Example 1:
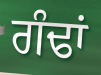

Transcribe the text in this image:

ਗੰਢਾਂ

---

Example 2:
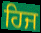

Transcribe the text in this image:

ਹਿਜ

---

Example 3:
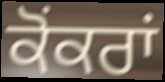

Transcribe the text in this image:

ਕੋਂਕਰਾਂ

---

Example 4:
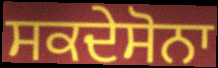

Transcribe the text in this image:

ਸਕਦੇਸੋਨਾ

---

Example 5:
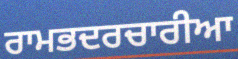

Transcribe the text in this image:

ਰਾਮਭਦਰਚਾਰੀਆ